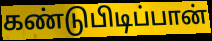
கண்டுபிடிப்பான்